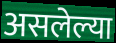
असलेल्या